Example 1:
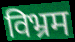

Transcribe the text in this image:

विभ्रम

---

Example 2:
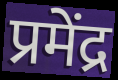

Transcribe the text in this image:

प्रमेंद्र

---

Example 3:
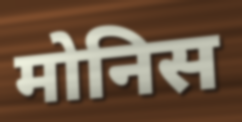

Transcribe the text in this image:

मोनिस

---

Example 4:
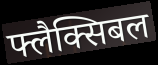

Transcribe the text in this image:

फ्लैक्सिबल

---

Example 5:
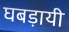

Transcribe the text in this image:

घबड़ायी